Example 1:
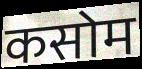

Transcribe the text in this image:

कसोम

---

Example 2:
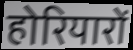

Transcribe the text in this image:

होरियारों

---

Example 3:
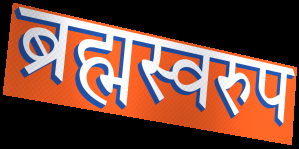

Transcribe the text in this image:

ब्रह्मस्वरुप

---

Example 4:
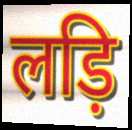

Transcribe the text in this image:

लड़ि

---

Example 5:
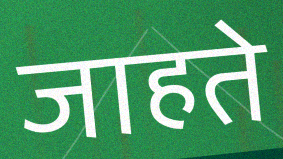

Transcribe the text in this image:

जाहते